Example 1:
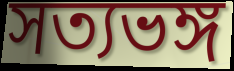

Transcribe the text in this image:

সত্যভঙ্গ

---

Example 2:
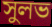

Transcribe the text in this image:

সুলভ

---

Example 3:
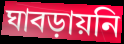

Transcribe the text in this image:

ঘাবড়ায়নি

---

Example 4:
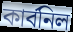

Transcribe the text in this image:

কার্বনিল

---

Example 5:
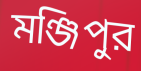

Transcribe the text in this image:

মঞ্জিপুর